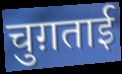
चुग़ताई